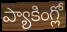
ప్యాకింగ్లో